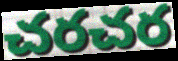
చరచర